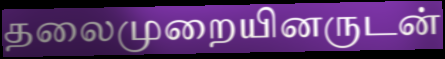
தலைமுறையினருடன்